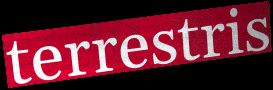
terrestris